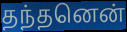
தந்தனென்